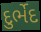
દુર્ભેદ